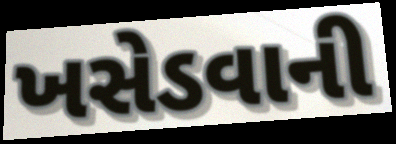
ખસેડવાની